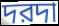
দরদা